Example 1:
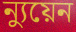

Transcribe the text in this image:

ন্যুয়েন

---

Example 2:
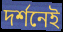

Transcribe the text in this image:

দর্শনেই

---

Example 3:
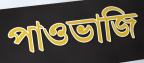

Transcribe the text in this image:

পাওভাজি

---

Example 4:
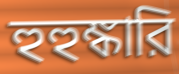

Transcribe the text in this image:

হুহুঙ্কারি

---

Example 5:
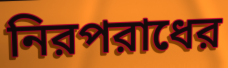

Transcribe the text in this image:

নিরপরাধের